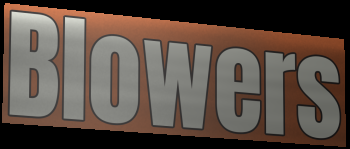
Blowers